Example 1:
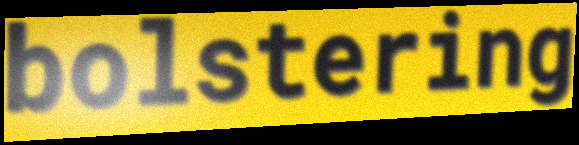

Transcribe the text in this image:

bolstering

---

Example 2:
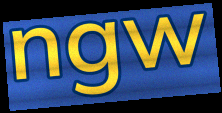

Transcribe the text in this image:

ngw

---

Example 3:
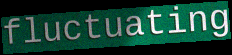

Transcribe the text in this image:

fluctuating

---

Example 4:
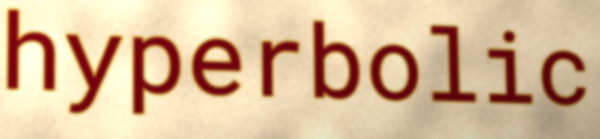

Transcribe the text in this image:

hyperbolic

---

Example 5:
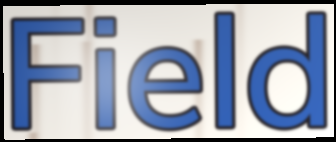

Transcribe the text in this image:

Field